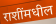
राशींमधील